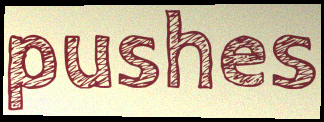
pushes